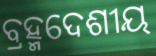
ବ୍ରହ୍ମଦେଶୀୟ